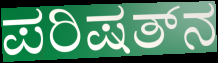
ಪರಿಷತ್‌ನ